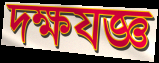
দক্ষযজ্ঞ